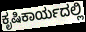
ಕೃಷಿಕಾರ್ಯದಲ್ಲಿ